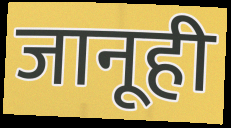
जानूही